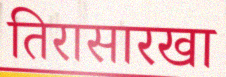
तिरासारखा